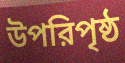
উপরিপৃষ্ঠ